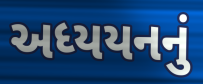
અધ્યયનનું